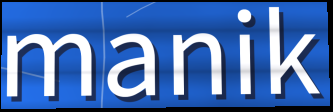
manik